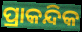
ପ୍ରାକନ୍ଦିକ